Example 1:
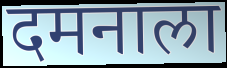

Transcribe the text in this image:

दमनाला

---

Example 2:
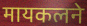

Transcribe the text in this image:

मायकलने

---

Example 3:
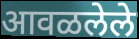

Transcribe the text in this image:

आवळलेले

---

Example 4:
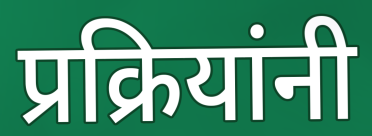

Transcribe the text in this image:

प्रक्रियांनी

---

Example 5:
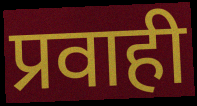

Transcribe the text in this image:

प्रवाही